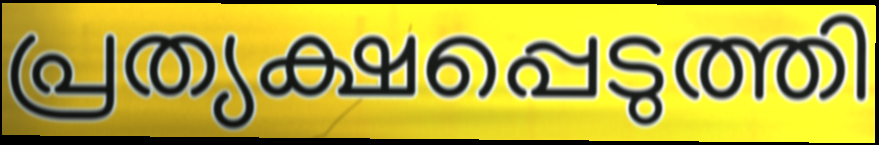
പ്രത്യക്ഷപ്പെടുത്തി